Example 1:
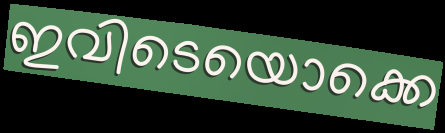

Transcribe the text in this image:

ഇവിടെയൊക്കെ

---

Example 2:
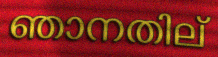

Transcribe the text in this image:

ഞാനതില്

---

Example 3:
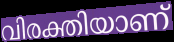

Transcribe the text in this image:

വിരക്തിയാണ്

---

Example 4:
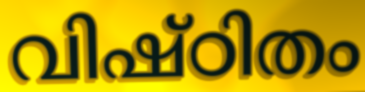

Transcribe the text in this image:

വിഷ്ഠിതം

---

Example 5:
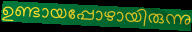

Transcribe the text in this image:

ഉണ്ടായപ്പോഴായിരുന്നു